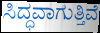
ಸಿದ್ಧವಾಗುತ್ತಿವೆ